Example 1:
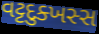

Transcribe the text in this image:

વટ્ટદુક્ખસ્સ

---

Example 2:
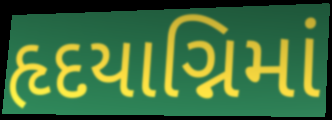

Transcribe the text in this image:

હૃદયાગ્નિમાં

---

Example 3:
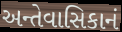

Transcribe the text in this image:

અન્તેવાસિકાનં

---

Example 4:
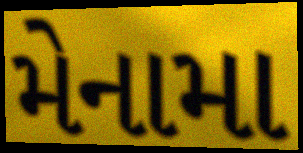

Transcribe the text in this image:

મેનામા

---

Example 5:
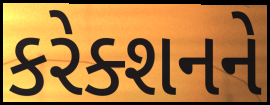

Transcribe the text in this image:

કરેક્શનને